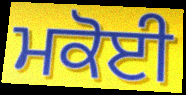
ਮਕੋਈ